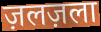
ज़लज़ला